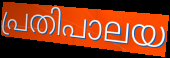
പ്രതിപാലയ